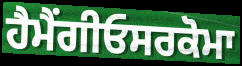
ਹੈਮੈਂਗੀਓਸਰਕੋਮਾ